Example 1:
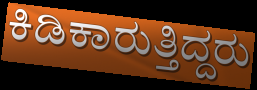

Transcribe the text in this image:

ಕಿಡಿಕಾರುತ್ತಿದ್ದರು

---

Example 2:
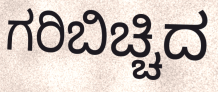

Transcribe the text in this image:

ಗರಿಬಿಚ್ಚಿದ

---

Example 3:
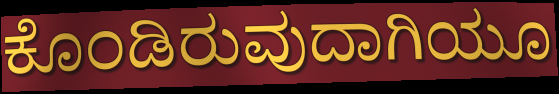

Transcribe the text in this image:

ಕೊಂಡಿರುವುದಾಗಿಯೂ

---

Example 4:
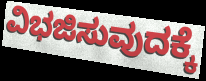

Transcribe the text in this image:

ವಿಭಜಿಸುವುದಕ್ಕೆ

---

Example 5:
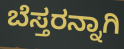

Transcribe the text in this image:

ಬೆಸ್ತರನ್ನಾಗಿ